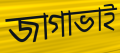
জাগাভাই